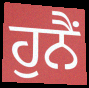
ਹੁਨੈਂ